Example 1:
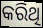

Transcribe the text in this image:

କରିଥି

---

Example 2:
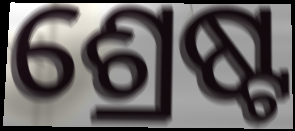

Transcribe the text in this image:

ଶ୍ରେଷ୍ଟ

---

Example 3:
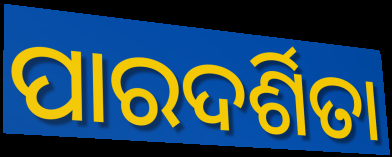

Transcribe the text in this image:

ପାରଦର୍ଶିତା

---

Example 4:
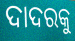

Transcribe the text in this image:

ଦାଦରକୁ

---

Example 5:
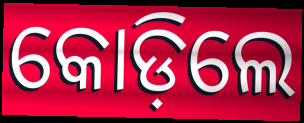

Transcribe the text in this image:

କୋଡ଼ିଲେ